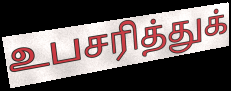
உபசரித்துக்